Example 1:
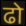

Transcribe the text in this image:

ढो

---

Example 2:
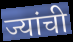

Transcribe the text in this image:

ज्यांची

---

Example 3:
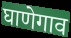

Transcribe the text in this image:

घाणेगाव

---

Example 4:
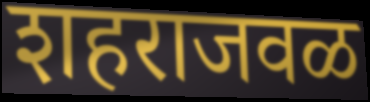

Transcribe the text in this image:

शहराजवळ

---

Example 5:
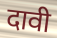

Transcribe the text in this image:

दावी